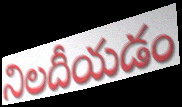
నిలదీయడం